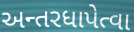
અન્તરધાપેત્વા